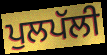
ਪੁਲਪੱਲੀ